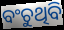
ବଂଚୁଥିବି